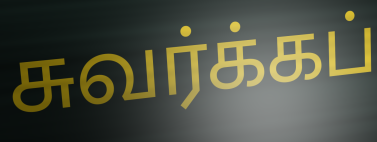
சுவர்க்கப்